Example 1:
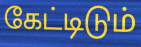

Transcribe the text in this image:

கேட்டிடும்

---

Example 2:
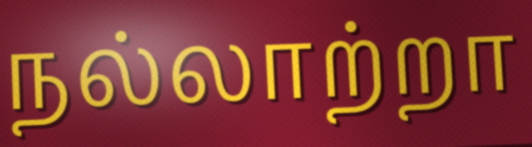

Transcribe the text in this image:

நல்லாற்றா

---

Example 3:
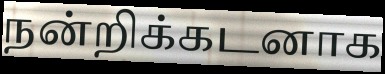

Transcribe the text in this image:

நன்றிக்கடனாக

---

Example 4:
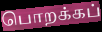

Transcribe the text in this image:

பொறக்கப்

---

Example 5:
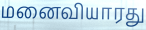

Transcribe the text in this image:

மனைவியாரது